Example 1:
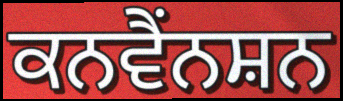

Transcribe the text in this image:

ਕਨਵੈਂਨਸ਼ਨ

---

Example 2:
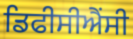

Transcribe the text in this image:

ਡਿਫੀਸੀਐਂਸੀ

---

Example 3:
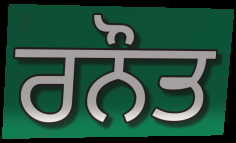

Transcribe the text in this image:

ਰਨੌਤ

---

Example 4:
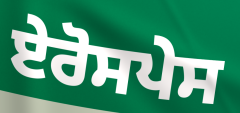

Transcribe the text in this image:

ਏਰੋਸਪੇਸ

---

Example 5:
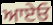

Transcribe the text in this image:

ਆਏਓ